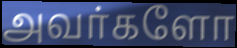
அவர்களோ